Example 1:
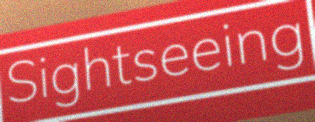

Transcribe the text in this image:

Sightseeing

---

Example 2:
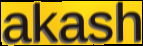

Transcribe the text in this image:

akash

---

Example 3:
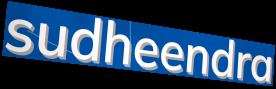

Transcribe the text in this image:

sudheendra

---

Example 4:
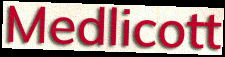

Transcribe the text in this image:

Medlicott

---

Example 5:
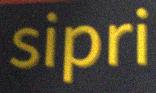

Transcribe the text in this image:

sipri